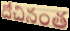
దోచినంత